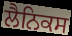
ਲੈਨਿਕਸ